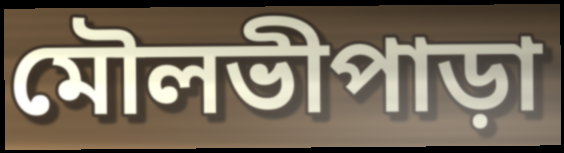
মৌলভীপাড়া